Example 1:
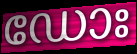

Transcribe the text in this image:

ഡോഃ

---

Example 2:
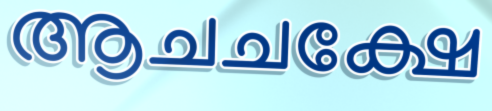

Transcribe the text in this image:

ആചചക്ഷേ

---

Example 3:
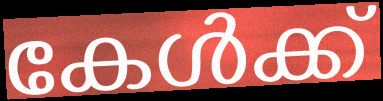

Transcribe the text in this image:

കേൾക്ക്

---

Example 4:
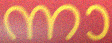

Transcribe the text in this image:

ന്നാ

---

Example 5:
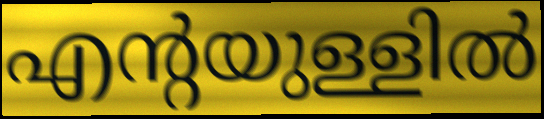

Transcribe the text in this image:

എന്റയുള്ളിൽ